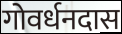
गोवर्धनदास